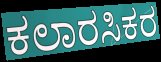
ಕಲಾರಸಿಕರ